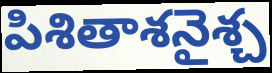
పిశితాశనైశ్చ